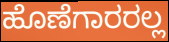
ಹೊಣೆಗಾರರಲ್ಲ